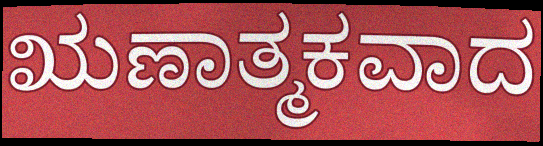
ಋಣಾತ್ಮಕವಾದ